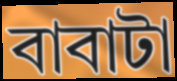
বাবাটা